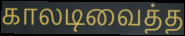
காலடிவைத்த